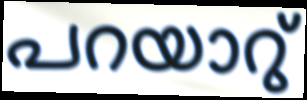
പറയാറു്